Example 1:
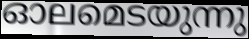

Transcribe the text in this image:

ഓലമെടയുന്നു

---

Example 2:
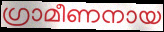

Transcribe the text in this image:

ഗ്രാമീണനായ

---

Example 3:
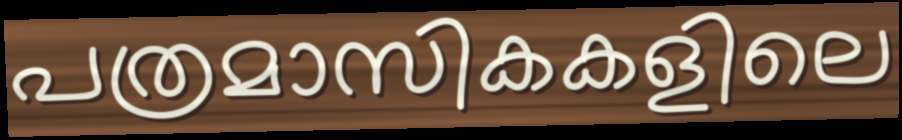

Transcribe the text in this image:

പത്രമാസികകളിലെ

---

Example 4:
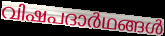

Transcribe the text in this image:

വിഷപദാർഥങ്ങൾ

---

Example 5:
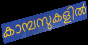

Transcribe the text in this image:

കാമ്പസുകളിൽ